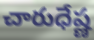
చారుధేష్ణ